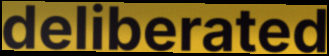
deliberated